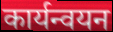
कार्यन्वयन